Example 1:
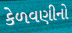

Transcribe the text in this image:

કેળવણીનો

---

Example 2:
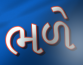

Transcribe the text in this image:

ભળે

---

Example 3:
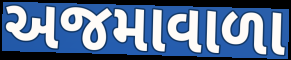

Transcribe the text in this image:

અજમાવાળા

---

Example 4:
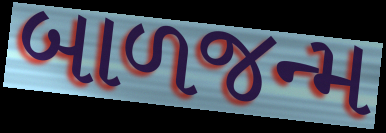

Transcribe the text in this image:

બાળજન્મ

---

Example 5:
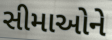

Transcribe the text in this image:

સીમાઓને